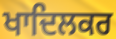
ਖਾਦਿਲਕਰ